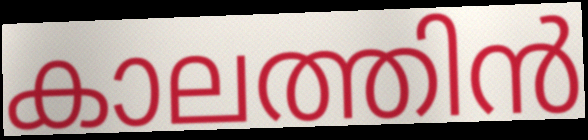
കാലത്തിൻ